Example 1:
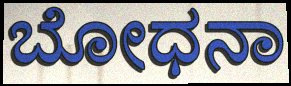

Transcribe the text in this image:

ಬೋಧನಾ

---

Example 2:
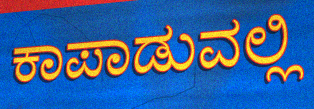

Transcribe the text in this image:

ಕಾಪಾಡುವಲ್ಲಿ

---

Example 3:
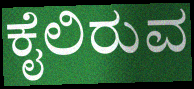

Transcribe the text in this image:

ಕೈಲಿರುವ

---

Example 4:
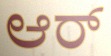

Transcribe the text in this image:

ಆರ್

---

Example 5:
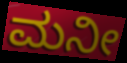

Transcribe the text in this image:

ಮನೀ